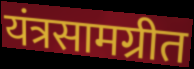
यंत्रसामग्रीत